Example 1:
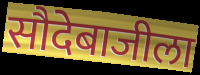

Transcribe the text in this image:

सौदेबाजीला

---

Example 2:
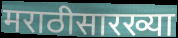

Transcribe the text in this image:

मराठीसारख्या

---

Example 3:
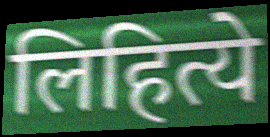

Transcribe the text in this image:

लिहित्ये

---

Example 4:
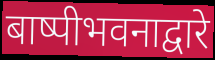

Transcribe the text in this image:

बाष्पीभवनाद्वारे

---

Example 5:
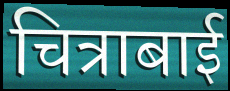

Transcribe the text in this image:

चित्राबाई